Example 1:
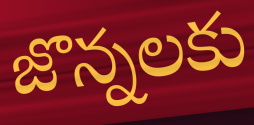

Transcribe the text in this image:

జొన్నలకు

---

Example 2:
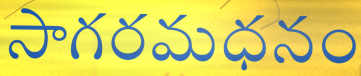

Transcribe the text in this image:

సాగరమధనం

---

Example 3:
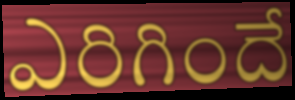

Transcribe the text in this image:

ఎరిగిందే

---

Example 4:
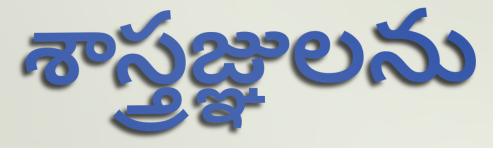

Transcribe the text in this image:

శాస్త్రజ్ఞులను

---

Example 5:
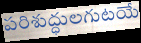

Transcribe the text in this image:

పరిశుద్ధులగుటయే